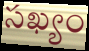
సఖ్యం